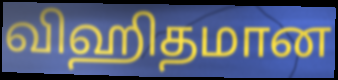
விஹிதமான